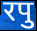
रपु